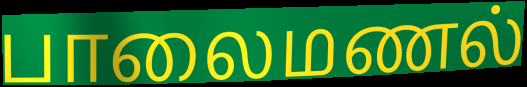
பாலைமணல்